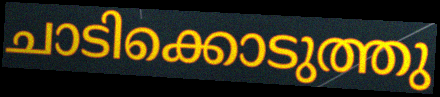
ചാടിക്കൊടുത്തു